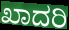
ಖಾದರಿ